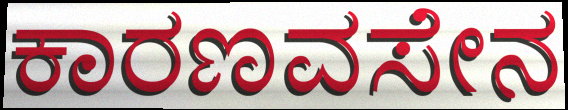
ಕಾರಣವಸೇನ